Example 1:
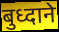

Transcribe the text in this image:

बुध्दाने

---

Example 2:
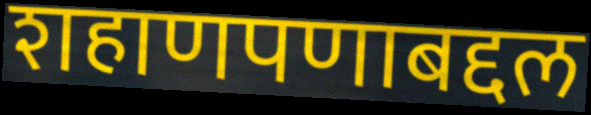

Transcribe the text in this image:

शहाणपणाबद्दल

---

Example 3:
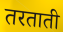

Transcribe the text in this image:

तरताती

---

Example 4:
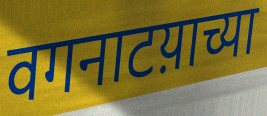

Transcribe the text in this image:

वगनाटय़ाच्या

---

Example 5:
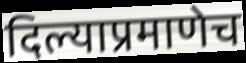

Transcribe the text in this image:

दिल्याप्रमाणेच